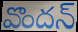
వొందన్